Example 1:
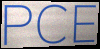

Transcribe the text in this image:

PCE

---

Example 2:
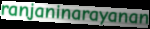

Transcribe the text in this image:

ranjaninarayanan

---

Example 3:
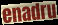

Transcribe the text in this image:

enadru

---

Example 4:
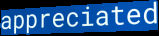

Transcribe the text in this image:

appreciated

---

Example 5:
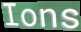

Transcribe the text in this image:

Ions